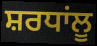
ਸ਼ਰਧਾਂਲੂ